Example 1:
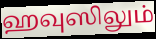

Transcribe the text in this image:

ஹவுஸிலும்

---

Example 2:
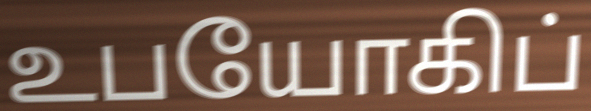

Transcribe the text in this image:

உபயோகிப்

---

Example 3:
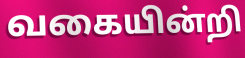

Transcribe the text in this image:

வகையின்றி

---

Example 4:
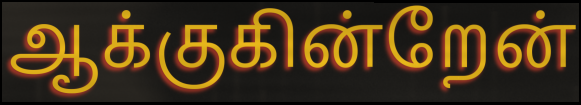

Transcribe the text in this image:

ஆக்குகின்றேன்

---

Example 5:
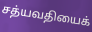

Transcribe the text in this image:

சத்யவதியைக்